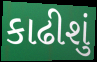
કાઢીશું